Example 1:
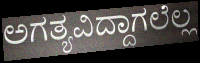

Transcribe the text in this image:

ಅಗತ್ಯವಿದ್ದಾಗಲೆಲ್ಲ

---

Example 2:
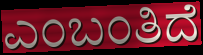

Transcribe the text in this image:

ಎಂಬಂತಿದೆ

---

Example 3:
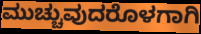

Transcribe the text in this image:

ಮುಚ್ಚುವುದರೊಳಗಾಗಿ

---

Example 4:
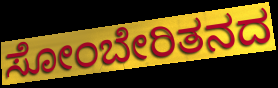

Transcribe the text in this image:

ಸೋಂಬೇರಿತನದ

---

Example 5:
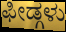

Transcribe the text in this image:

ಫೀಡ್ಗಳು